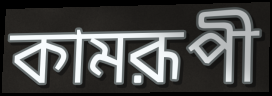
কামরূপী